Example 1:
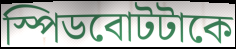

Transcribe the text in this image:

স্পিডবোটটাকে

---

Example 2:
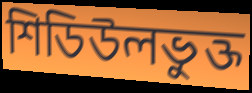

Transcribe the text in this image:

শিডিউলভুক্ত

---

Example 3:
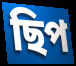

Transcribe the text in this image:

ছিপ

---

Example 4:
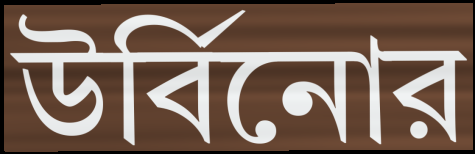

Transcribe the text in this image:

উর্বিনোর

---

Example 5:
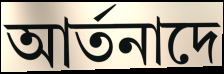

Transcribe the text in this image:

আর্তনাদে